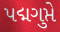
પદ્મગુપ્તે